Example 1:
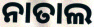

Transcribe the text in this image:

ନାତାଲ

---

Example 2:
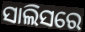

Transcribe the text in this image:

ସାଲିସରେ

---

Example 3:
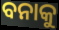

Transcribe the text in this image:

ବନାକୁ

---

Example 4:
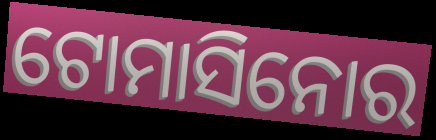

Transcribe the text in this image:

ଟୋମାସିନୋର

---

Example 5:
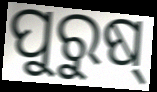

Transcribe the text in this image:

ପୁରୁଷ୍